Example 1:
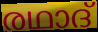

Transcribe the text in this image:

രഥാദ്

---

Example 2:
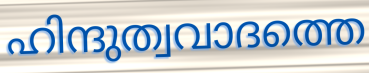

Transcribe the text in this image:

ഹിന്ദുത്വവാദത്തെ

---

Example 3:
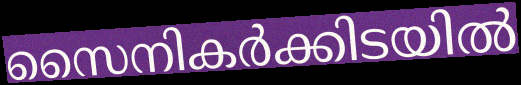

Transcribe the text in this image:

സൈനികർക്കിടയിൽ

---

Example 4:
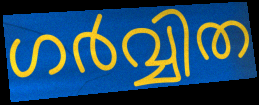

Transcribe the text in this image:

ഗർവ്വിത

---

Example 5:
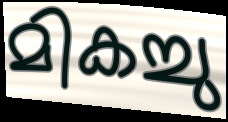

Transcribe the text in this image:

മികച്ചു